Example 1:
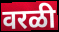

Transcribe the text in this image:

वरळी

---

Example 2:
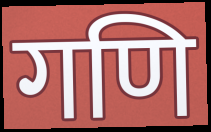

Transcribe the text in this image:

गणि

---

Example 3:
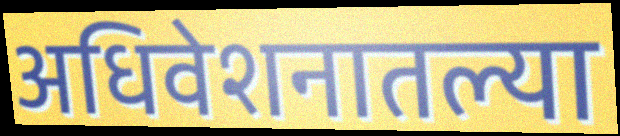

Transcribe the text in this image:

अधिवेशनातल्या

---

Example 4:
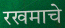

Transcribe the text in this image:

रखमाचे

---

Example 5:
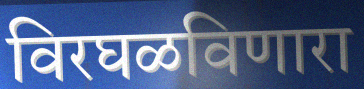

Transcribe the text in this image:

विरघळविणारा